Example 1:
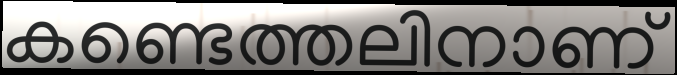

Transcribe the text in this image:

കണ്ടെത്തലിനാണ്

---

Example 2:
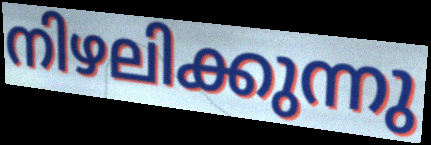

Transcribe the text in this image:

നിഴലിക്കുന്നു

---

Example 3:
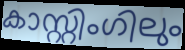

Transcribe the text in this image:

കാസ്റ്റിംഗിലും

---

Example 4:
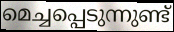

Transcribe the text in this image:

മെച്ചപ്പെടുന്നുണ്ട്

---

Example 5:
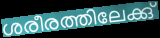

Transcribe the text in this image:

ശരീരത്തിലേക്കു്